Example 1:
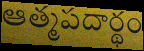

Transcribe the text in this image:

ఆత్మపదార్థం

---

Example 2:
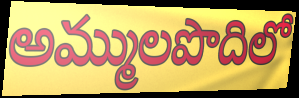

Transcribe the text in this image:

అమ్ములపొదిలో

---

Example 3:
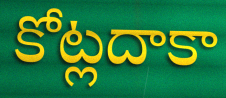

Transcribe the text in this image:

కోట్లదాకా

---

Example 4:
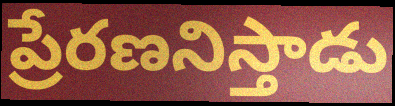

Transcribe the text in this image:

ప్రేరణనిస్తాడు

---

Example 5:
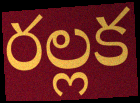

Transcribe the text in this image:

రల్లక